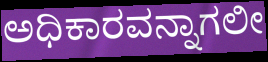
ಅಧಿಕಾರವನ್ನಾಗಲೀ